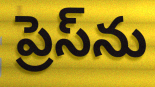
ప్రెస్‌ను